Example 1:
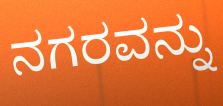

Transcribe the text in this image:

ನಗರವನ್ನು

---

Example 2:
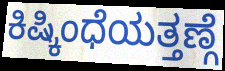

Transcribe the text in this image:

ಕಿಷ್ಕಿಂಧೆಯತ್ತಣ್ಗೆ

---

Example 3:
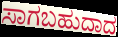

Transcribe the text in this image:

ಸಾಗಬಹುದಾದ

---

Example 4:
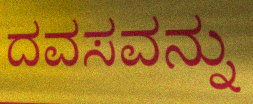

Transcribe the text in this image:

ದವಸವನ್ನು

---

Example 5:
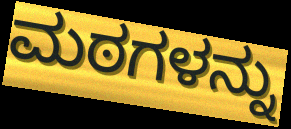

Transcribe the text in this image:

ಮಠಗಳನ್ನು